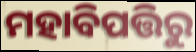
ମହାବିପତ୍ତିରୁ